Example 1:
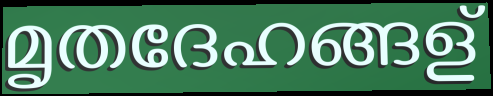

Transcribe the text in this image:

മൃതദേഹങ്ങള്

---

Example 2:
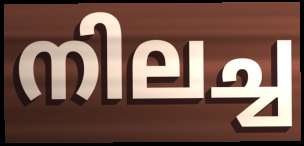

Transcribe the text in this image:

നിലച്ച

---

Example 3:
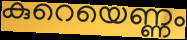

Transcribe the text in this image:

കുറെയെണ്ണം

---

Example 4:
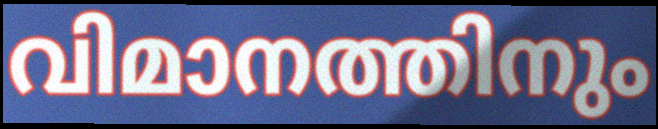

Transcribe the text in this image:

വിമാനത്തിനും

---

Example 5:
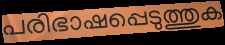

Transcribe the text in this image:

പരിഭാഷപ്പെടുത്തുക